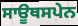
ਸਾਊਥਸਪੇਨ